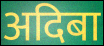
अदिबा